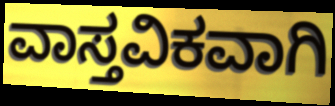
ವಾಸ್ತವಿಕವಾಗಿ